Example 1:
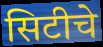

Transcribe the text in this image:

सिटीचे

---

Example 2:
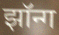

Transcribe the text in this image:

झॉन्ग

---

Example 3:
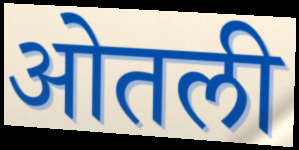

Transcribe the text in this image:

ओतली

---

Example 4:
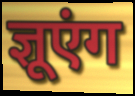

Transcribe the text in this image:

ज्ञूएंग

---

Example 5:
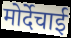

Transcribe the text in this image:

मोर्देचाई